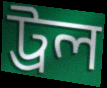
ট্রল